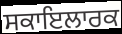
ਸਕਾਇਲਾਰਕ